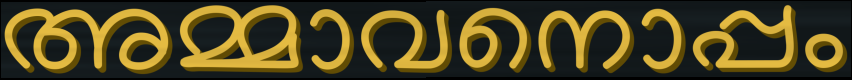
അമ്മാവനൊപ്പം